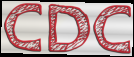
CDC